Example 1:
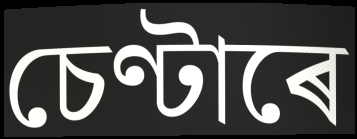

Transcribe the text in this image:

চেণ্টাৰে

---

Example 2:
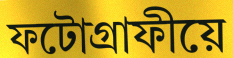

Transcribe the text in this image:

ফটোগ্ৰাফীয়ে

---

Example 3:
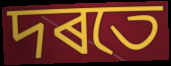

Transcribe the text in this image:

দৰতে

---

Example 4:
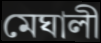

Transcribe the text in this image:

মেঘালী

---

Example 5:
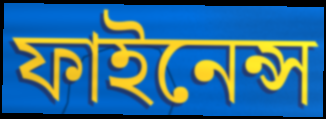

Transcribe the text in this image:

ফাইনেন্স